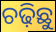
ଚଢ଼ିଛୁ